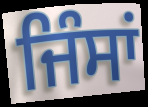
ਜਿੰਸਾਂ